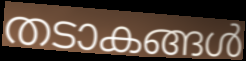
തടാകങ്ങൾ